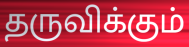
தருவிக்கும்